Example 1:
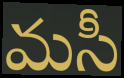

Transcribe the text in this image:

మసీ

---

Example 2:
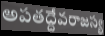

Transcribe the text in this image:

అపతద్దేవరాజస్య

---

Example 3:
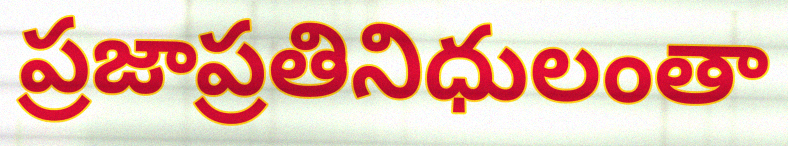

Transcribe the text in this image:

ప్రజాప్రతినిధులంతా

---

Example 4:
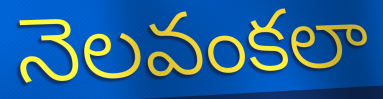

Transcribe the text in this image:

నెలవంకలా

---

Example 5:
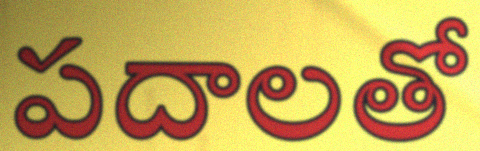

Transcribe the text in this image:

పదాలతో